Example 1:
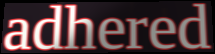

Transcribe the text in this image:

adhered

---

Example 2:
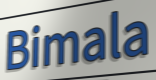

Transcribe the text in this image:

Bimala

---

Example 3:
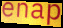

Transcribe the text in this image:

enap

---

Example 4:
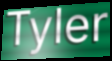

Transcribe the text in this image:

Tyler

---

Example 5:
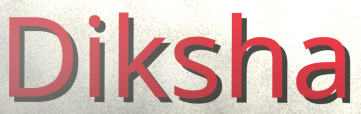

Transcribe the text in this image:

Diksha